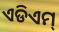
ଏଡିଏମ୍